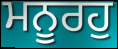
ਮਨੂਰਹੁ